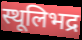
स्थूलिभद्र